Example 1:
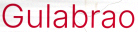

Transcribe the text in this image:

Gulabrao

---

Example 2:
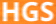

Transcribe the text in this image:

HGS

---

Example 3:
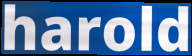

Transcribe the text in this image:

harold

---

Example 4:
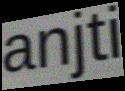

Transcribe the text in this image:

anjti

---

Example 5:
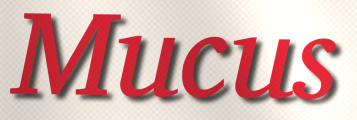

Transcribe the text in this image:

Mucus